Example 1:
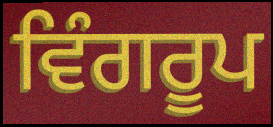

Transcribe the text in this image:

ਵਿੰਗਰੂਪ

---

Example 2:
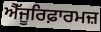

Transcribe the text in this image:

ਐੱਜੂਰਿਫ਼ਾਰਮਜ਼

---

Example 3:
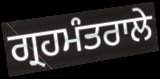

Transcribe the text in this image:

ਗ੍ਰਹਮੰਤਰਾਲੇ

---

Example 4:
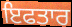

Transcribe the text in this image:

ਇਫਤਾਰ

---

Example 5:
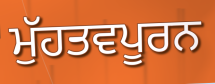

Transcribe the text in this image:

ਮੁੱਹਤਵਪੂਰਨ